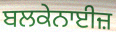
ਬਲਕੇਨਾਈਜ਼